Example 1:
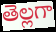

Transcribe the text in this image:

తెల్లగా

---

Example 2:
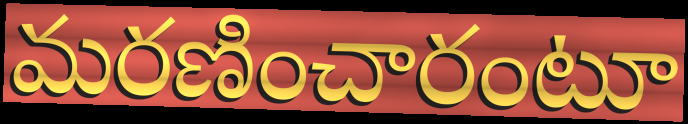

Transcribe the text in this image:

మరణించారంటూ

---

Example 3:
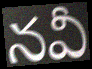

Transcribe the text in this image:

నవీ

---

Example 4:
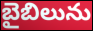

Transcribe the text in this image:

బైబిలును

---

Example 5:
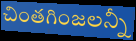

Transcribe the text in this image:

చింతగింజలన్నీ